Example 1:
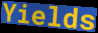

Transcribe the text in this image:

Yields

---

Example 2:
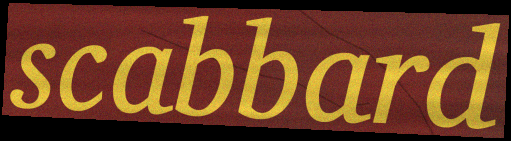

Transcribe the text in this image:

scabbard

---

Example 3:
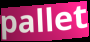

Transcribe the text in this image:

pallet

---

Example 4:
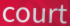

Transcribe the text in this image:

court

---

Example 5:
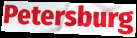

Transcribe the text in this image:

Petersburg